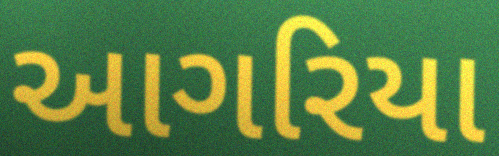
આગરિયા